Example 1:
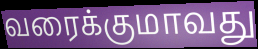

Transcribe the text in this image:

வரைக்குமாவது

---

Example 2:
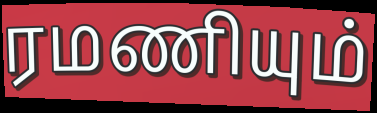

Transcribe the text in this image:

ரமணியும்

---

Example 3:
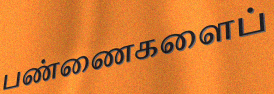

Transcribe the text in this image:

பண்ணைகளைப்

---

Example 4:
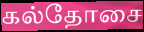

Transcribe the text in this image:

கல்தோசை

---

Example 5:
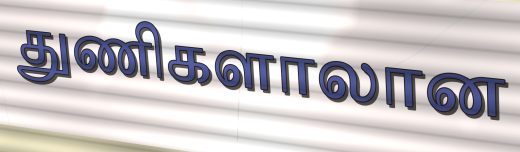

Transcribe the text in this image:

துணிகளாலான